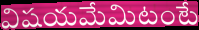
విషయమేమిటంటే